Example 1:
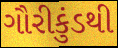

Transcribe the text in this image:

ગૌરીકુંડથી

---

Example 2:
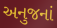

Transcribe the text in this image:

અનુજનાં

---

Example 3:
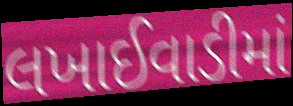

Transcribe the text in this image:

લખાઈવાડીમાં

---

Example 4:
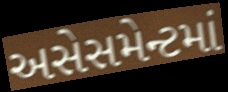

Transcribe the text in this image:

અસેસમેન્ટમાં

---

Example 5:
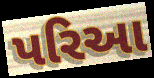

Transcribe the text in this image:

પરિઆ